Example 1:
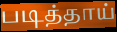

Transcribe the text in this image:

படித்தாய்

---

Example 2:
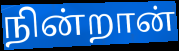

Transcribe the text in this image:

நின்றான்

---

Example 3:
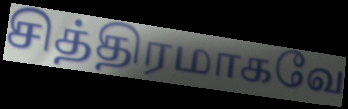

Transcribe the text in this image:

சித்திரமாகவே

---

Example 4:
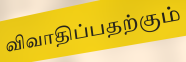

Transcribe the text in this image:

விவாதிப்பதற்கும்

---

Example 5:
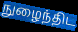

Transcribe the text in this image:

நுழைந்திட